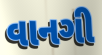
વાનગી